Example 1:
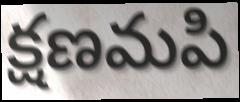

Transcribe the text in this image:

క్షణమపి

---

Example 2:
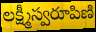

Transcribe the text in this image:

లక్ష్మీస్వరూపిణి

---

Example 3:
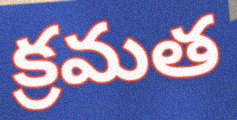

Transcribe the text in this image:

క్రమత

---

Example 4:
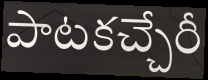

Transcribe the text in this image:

పాటకచ్చేరీ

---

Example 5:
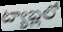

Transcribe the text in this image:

ట్యాబ్లలో